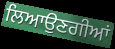
ਲਿਆਉਣਗੀਆਂ